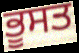
ਭੂਸਤ